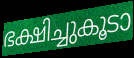
ഭക്ഷിച്ചുകൂടാ